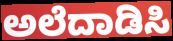
ಅಲೆದಾಡಿಸಿ